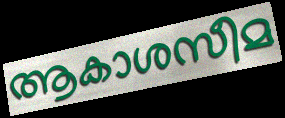
ആകാശസീമ